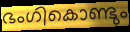
ഭംഗികൊണ്ടും